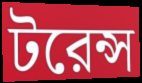
টরেন্স